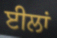
ਈਲਾਂ